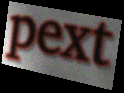
pext